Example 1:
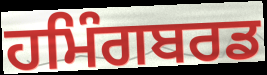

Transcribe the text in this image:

ਹਮਿੰਗਬਰਡ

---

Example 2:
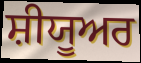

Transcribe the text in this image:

ਸ਼ੀਯੂਅਰ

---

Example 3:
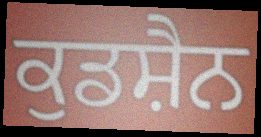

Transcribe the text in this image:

ਕੁਡਸ਼ੈਨ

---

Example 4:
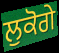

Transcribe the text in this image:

ਲੁਕੋਗੇ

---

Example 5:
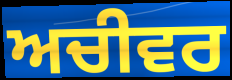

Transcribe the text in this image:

ਅਚੀਵਰ